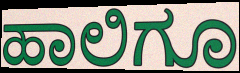
ಹಾಲಿಗೂ